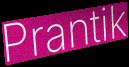
Prantik